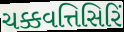
ચક્કવત્તિસિરિં